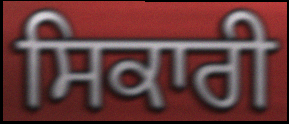
ਸਿਕਾਰੀ